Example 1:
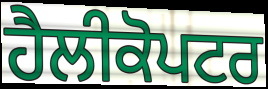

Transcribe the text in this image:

ਹੈਲੀਕੋਪਟਰ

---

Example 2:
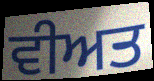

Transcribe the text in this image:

ਵੀਅਤ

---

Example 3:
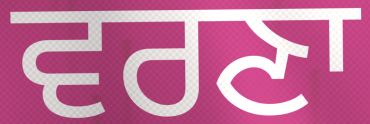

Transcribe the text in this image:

ਵਰਣਾ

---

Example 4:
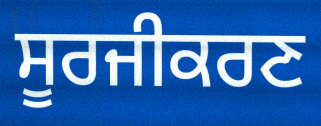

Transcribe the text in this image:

ਸੂਰਜੀਕਰਣ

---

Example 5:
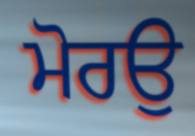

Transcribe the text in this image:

ਮੋਰਉ